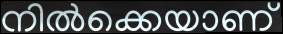
നിൽക്കെയാണ്